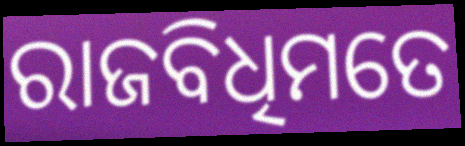
ରାଜବିଧିମତେ